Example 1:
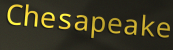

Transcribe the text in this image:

Chesapeake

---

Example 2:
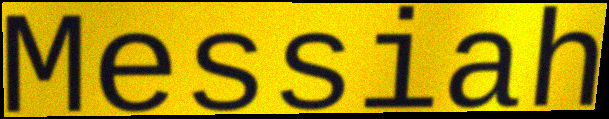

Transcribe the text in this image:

Messiah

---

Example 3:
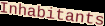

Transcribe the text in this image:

Inhabitants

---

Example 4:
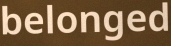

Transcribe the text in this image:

belonged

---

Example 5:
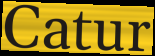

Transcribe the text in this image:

Catur